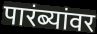
पारंब्यांवर